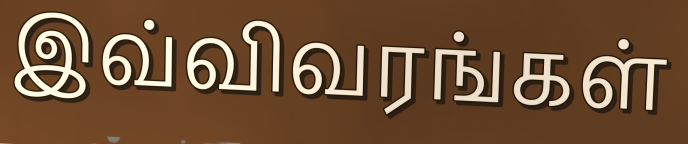
இவ்விவரங்கள்